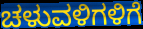
ಚಳುವಳಿಗಳಿಗೆ